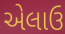
એલાઉ